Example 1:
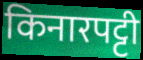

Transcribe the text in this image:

किनारपट्टी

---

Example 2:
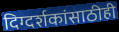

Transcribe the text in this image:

दिग्दर्शकांसाठीही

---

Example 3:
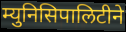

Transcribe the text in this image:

म्युनिसिपालिटीने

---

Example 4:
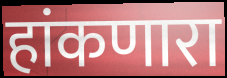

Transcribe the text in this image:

हांकणारा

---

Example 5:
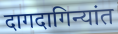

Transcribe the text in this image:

दागदागिन्यांत